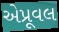
એપ્રૂવલ